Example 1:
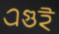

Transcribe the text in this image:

এগুই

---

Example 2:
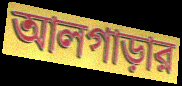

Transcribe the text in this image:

আলগাড়ার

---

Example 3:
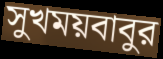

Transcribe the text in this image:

সুখময়বাবুর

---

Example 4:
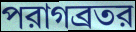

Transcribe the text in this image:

পরাগব্রতর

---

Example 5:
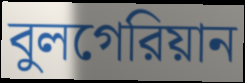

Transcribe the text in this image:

বুলগেরিয়ান